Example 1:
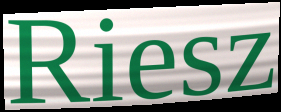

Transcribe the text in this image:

Riesz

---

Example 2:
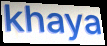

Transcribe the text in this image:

khaya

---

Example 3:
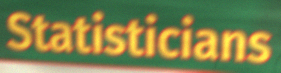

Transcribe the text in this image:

Statisticians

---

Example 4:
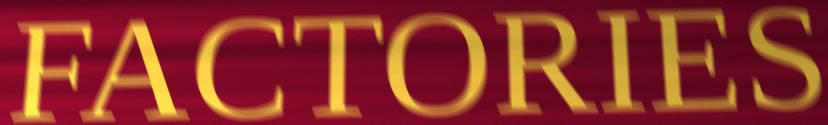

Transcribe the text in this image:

FACTORIES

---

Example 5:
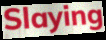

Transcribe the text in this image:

Slaying